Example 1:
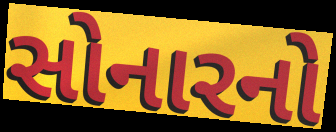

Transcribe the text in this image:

સોનારનો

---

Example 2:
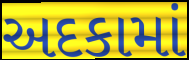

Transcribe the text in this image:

અદકામાં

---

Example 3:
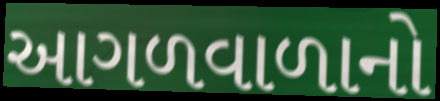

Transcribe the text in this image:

આગળવાળાનો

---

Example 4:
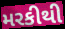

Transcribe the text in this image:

મરકીથી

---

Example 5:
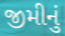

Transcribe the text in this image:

જીમીનું